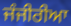
ਜੰਜੀਰੀਆ